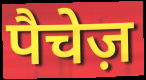
पैचेज़